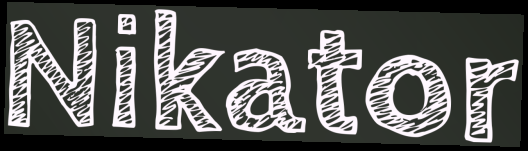
Nikator